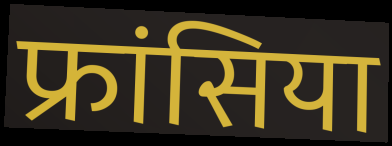
फ्रांसिया